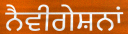
ਨੈਵੀਗੇਸ਼ਨਾਂ